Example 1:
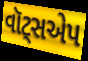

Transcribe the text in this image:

વૉટ્સએપ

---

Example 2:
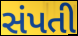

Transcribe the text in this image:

સંપતી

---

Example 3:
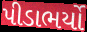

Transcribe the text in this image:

પીડાભર્યો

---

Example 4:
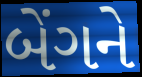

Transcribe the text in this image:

બેંગને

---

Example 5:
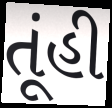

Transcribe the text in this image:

તૂંહી